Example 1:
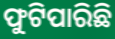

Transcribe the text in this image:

ଫୁଟିପାରିଛି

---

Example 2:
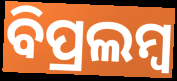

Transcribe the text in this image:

ବିପ୍ରଲମ୍ବ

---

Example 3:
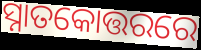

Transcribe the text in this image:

ସ୍ନାତକୋତ୍ତରରେ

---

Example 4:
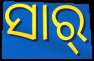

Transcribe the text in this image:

ସାର୍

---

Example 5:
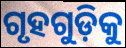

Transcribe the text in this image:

ଗୃହଗୁଡ଼ିକୁ